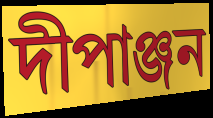
দীপাঞ্জন